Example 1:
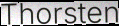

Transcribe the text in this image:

Thorsten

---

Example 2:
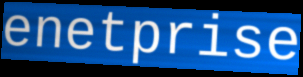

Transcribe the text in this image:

enetprise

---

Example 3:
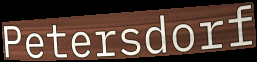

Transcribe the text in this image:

Petersdorf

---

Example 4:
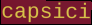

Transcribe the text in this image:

capsici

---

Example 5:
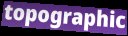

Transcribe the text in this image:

topographic